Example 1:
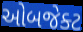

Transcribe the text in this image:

ઓબજેક્ટ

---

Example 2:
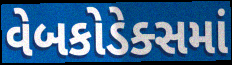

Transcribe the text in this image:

વેબકોડેક્સમાં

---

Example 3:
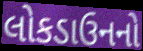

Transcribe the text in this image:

લોકડાઉનનો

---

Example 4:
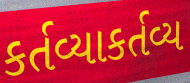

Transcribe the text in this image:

કર્તવ્યાકર્તવ્ય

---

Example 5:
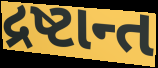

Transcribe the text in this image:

દ્રષ્ટાન્ત